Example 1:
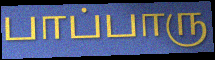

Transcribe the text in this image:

பாப்பாரு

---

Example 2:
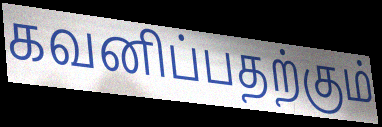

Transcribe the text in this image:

கவனிப்பதற்கும்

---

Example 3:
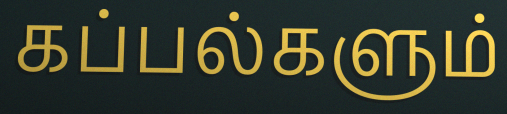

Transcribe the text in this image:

கப்பல்களும்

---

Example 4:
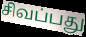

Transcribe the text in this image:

சிவப்பது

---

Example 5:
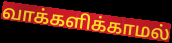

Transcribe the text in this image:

வாக்களிக்காமல்